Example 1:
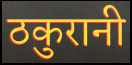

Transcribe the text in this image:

ठकुरानी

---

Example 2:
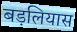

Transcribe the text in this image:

बड़लियास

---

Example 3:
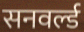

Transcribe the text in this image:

सनवर्ल्ड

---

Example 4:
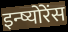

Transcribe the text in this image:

इन्ष्योरेंस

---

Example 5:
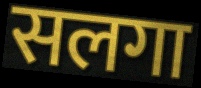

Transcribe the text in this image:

सलगा